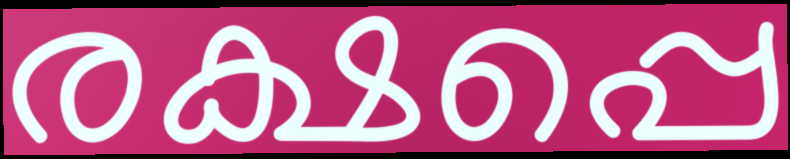
രക്ഷപ്പെ